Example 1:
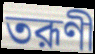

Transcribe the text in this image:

তরূণী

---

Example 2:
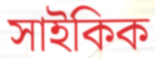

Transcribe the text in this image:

সাইকিক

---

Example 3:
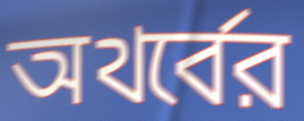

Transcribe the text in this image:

অথর্বের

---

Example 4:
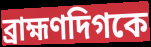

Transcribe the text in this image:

ব্রাহ্মণদিগকে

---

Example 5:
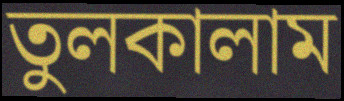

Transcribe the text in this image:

তুলকালাম